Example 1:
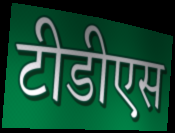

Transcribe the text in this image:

टीडीएस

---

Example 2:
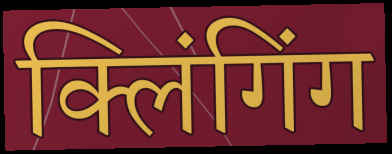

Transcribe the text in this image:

क्लिंगिंग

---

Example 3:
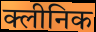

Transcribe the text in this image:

क्लीनिक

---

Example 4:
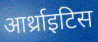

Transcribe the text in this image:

आर्थ्राइटिस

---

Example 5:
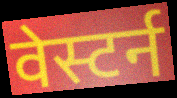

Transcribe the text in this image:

वेस्टर्न